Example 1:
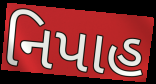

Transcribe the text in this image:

નિપાહ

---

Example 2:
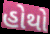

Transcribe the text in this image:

હોથો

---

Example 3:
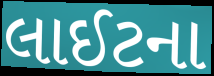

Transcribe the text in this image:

લાઈટના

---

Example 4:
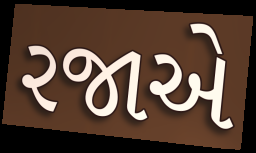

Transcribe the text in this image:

રજાએ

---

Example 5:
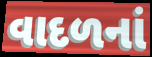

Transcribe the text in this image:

વાદળનાં